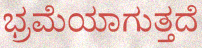
ಭ್ರಮೆಯಾಗುತ್ತದೆ